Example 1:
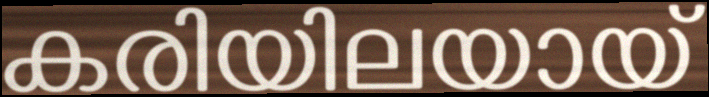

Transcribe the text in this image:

കരിയിലയായ്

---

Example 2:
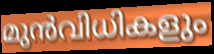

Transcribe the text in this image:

മുൻവിധികളും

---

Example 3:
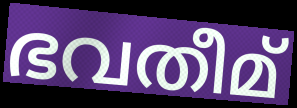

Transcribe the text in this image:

ഭവതീമ്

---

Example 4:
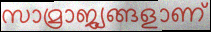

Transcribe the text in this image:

സാമ്രാജ്യങ്ങളാണ്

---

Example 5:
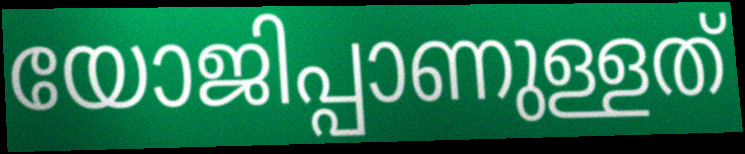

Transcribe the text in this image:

യോജിപ്പാണുള്ളത്